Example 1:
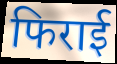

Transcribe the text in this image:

फिराई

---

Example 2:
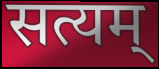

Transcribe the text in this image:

सत्यम्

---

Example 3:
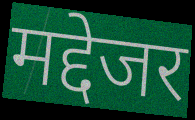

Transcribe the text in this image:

मद्देजर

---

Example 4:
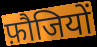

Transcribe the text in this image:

फ़ौजियों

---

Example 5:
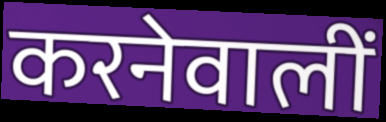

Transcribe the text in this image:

करनेवालीं